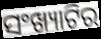
ସଂଖ୍ୟାଟିର